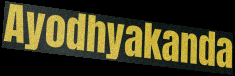
Ayodhyakanda